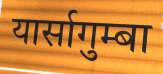
यार्सागुम्बा